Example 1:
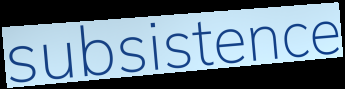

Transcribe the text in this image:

subsistence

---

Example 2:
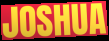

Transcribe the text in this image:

JOSHUA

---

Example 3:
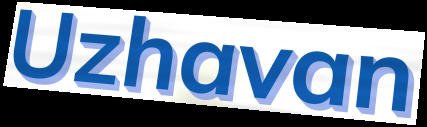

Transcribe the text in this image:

Uzhavan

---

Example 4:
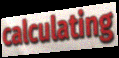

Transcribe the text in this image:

calculating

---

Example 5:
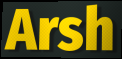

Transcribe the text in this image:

Arsh